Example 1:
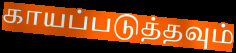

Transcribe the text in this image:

காயப்படுத்தவும்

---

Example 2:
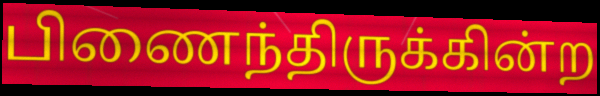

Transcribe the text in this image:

பிணைந்திருக்கின்ற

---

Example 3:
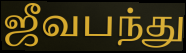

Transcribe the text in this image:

ஜீவபந்து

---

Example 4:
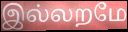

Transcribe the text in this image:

இல்லறமே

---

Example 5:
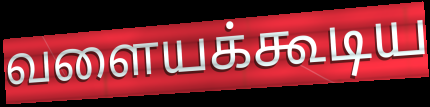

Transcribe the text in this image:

வளையக்கூடிய